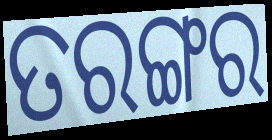
ତରଙ୍ଗର